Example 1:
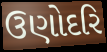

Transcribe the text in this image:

ઉણોદરિ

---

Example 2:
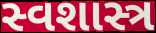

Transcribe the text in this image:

સ્વશાસ્ત્ર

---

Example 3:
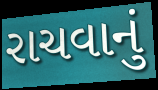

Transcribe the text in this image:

રાચવાનું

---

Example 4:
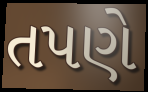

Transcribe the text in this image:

તપણે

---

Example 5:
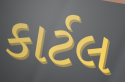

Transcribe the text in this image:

કાર્ટલ